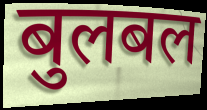
बुलबल